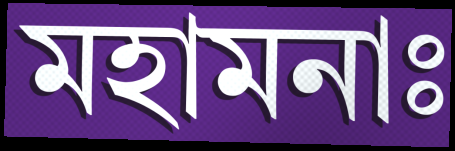
মহামনাঃ